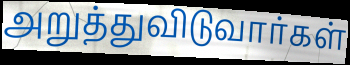
அறுத்துவிடுவார்கள்